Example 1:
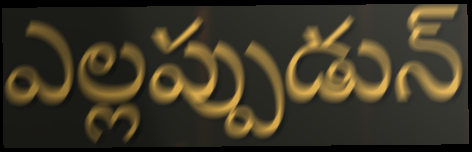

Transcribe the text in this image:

ఎల్లప్పుడున్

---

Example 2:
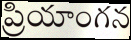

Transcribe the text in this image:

ప్రియాంగన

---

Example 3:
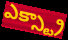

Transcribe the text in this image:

ఎక్స్ట్రా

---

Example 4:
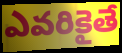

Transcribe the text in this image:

ఎవరికైతే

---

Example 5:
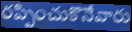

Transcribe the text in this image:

రప్పించుకొనేవారు